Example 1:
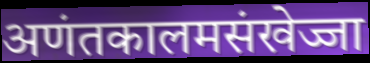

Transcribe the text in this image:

अणंतकालमसंखेज्जा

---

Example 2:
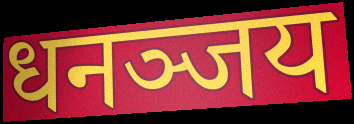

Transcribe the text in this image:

धनञ्जय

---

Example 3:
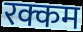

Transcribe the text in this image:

रक्कम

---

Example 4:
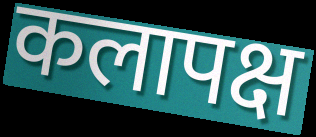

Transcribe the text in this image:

कलापक्ष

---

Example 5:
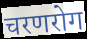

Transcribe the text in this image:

चरणरोग